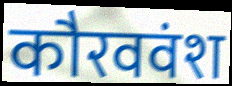
कौरववंश